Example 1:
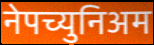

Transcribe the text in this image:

नेपच्युनिअम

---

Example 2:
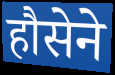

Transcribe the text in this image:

हौसेने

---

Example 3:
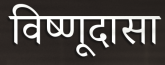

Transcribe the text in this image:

विष्णूदासा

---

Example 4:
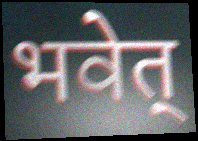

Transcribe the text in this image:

भवेत्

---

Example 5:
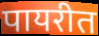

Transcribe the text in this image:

पायरीत